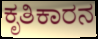
ಕೃತಿಕಾರನ